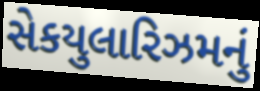
સેકયુલારિઝમનું